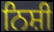
ਨਿਸ਼ੀ